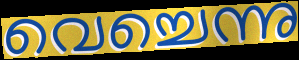
വെച്ചെന്നു